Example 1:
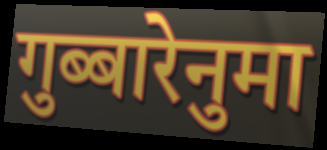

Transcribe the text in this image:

गुब्बारेनुमा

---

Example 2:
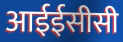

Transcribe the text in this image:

आईईसीसी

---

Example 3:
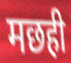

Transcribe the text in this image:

मछही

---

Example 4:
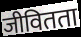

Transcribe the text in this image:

जीवितता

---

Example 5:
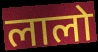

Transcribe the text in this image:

लालो